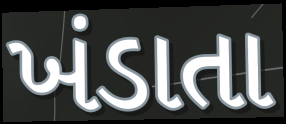
ખંડાતા